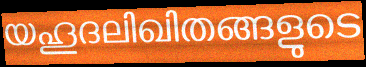
യഹൂദലിഖിതങ്ങളുടെ